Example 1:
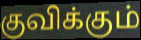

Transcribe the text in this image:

குவிக்கும்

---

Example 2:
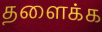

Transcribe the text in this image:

தளைக்க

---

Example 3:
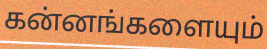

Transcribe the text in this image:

கன்னங்களையும்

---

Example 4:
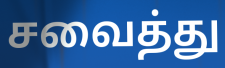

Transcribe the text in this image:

சவைத்து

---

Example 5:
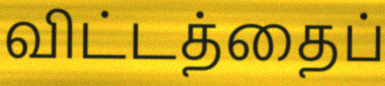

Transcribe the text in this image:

விட்டத்தைப்